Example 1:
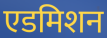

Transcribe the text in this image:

एडमिशन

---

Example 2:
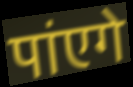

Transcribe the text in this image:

पांएगे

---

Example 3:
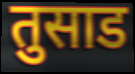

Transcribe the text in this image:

तुसाड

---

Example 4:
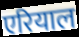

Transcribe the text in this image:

एरियाल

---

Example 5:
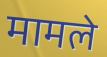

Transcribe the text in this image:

मामले